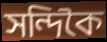
সন্দিকৈ